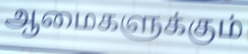
ஆமைகளுக்கும்